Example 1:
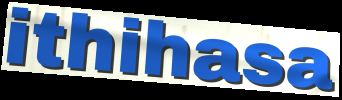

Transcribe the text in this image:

ithihasa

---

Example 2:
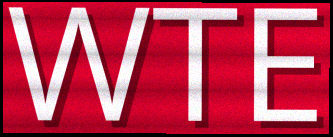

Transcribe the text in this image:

WTE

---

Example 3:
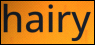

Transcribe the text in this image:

hairy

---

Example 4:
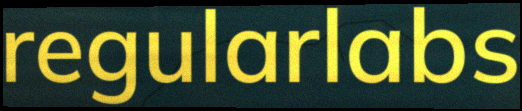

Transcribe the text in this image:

regularlabs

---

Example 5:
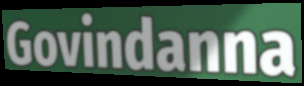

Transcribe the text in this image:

Govindanna